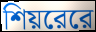
শিয়রেরে